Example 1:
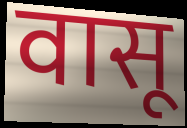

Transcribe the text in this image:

वासू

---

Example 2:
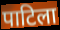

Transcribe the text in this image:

पाटिला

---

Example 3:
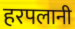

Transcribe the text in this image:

हरपलानी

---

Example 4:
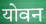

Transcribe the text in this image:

योवन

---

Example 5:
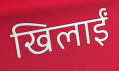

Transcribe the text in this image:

खिलाईं